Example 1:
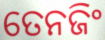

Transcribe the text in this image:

ତେନଜିଂ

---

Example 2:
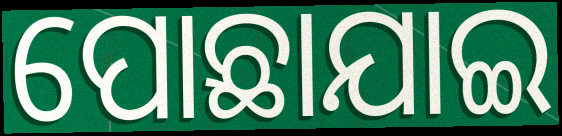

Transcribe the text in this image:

ପୋଛାଯାଇ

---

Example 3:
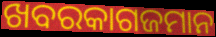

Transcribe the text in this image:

ଖବରକାଗଜମାନ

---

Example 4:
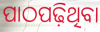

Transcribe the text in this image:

ପାଠପଢ଼ିଥିବା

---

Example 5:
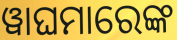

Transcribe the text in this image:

ୱାଘମାରେଙ୍କ